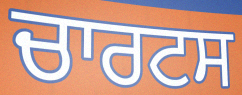
ਚਾਰਟਸ